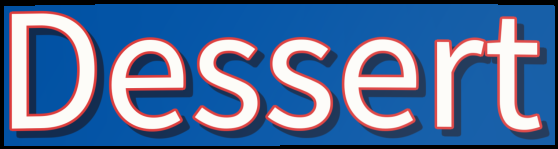
Dessert